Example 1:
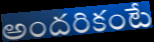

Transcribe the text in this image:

అందరికంటే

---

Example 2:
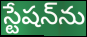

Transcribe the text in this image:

స్టేషన్‌ను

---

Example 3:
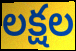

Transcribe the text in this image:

లక్షల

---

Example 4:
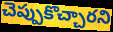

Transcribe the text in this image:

చెప్పుకొచ్చారని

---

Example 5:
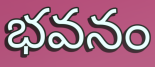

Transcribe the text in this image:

భవనం